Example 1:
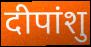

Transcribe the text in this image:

दीपांशु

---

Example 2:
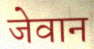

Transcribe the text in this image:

जेवान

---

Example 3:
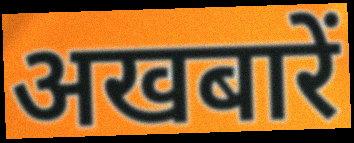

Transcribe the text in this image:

अखबारें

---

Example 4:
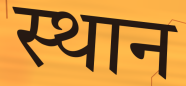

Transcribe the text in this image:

स्‍थान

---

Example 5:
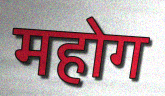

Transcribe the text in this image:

महोग